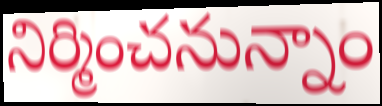
నిర్మించనున్నాం